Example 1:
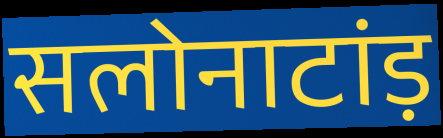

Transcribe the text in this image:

सलोनाटांड़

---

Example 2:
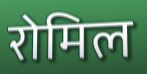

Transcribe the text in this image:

रोमिल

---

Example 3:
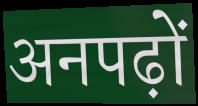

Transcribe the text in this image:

अनपढ़ों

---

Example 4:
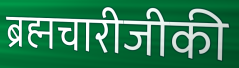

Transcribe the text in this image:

ब्रह्मचारीजीकी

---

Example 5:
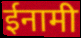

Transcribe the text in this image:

ईनामी